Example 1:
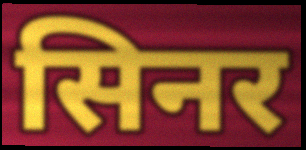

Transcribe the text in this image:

सिनर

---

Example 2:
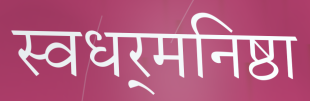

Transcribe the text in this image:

स्वधर्मनिष्ठा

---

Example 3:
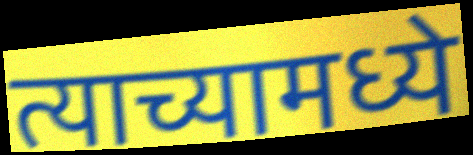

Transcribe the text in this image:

त्याच्यामध्ये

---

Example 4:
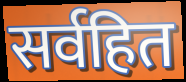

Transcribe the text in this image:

सर्वहित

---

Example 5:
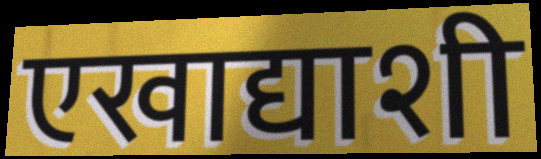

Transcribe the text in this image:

एखाद्याशी